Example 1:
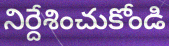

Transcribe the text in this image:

నిర్దేశించుకోండి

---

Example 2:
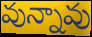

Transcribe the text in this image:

వున్నావు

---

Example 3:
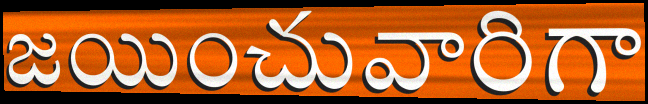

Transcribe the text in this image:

జయించువారిగా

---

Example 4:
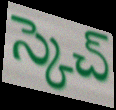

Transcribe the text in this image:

స్కెచ్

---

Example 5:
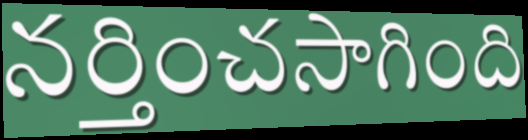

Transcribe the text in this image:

నర్తించసాగింది